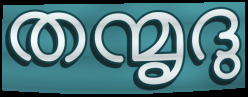
തന്മൃദു